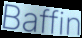
Baffin